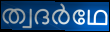
ത്വദർഥേ